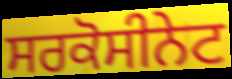
ਸਰਕੋਸੀਨੇਟ